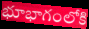
భూభాగంలోకి